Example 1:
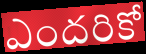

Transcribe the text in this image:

ఎందరికో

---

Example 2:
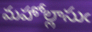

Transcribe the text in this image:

మహోల్లాసుఁ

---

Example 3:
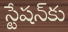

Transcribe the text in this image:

స్టేషన్‍కు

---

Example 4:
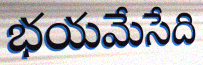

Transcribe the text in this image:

భయమేసేది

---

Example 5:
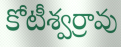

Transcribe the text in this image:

కోటీశ్వర్రావు